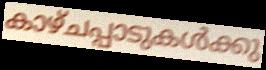
കാഴ്ചപ്പാടുകൾക്കു